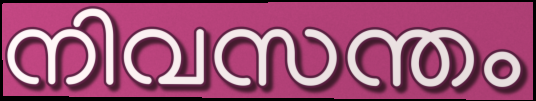
നിവസന്തം